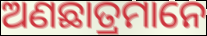
ଅଣଛାତ୍ରମାନେ